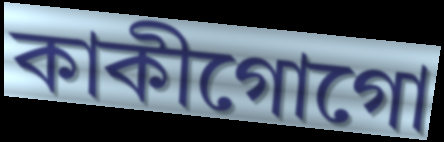
কাকীগোগো